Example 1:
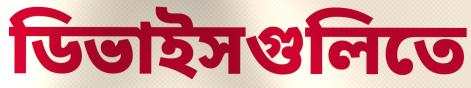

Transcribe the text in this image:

ডিভাইসগুলিতে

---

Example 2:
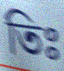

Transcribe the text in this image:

তিঃ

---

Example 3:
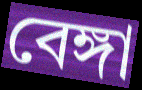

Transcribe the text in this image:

বেঙ্গা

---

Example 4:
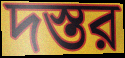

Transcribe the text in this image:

দস্তর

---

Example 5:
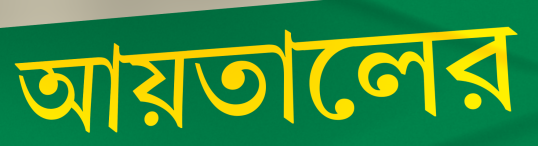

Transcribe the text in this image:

আয়তালের